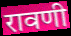
रावणी